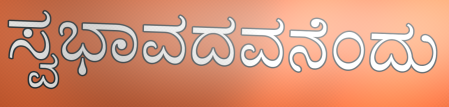
ಸ್ವಭಾವದವನೆಂದು